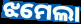
ଝମେଲା